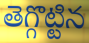
తెగ్గొట్టిన